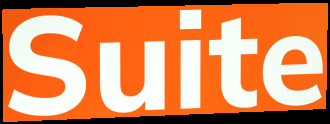
Suite